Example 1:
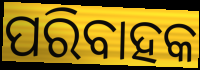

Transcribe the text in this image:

ପରିବାହକ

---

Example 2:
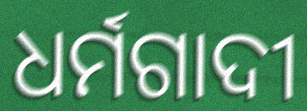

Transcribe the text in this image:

ଧର୍ମଗାଦୀ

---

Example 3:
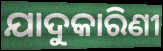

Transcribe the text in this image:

ଯାଦୁକାରିଣୀ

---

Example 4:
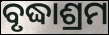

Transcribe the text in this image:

ବୃଦ୍ଧାଶ୍ରମ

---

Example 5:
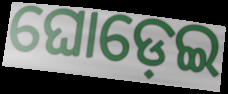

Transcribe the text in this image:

ଘୋଡ଼େଇ